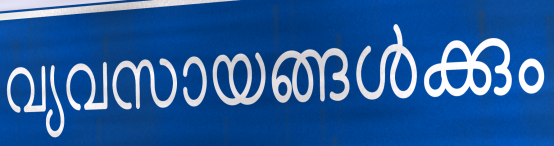
വ്യവസായങ്ങൾക്കും